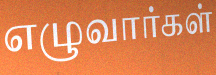
எழுவார்கள்